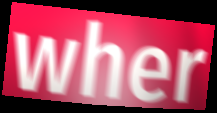
wher